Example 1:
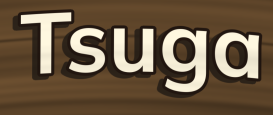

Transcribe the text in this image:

Tsuga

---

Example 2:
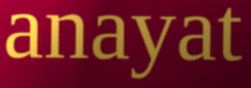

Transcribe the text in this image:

anayat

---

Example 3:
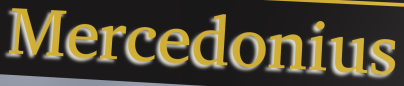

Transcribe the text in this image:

Mercedonius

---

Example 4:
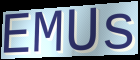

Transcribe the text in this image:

EMUs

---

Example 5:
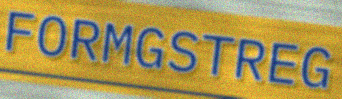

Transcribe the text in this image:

FORMGSTREG